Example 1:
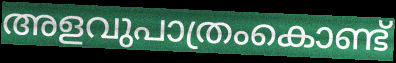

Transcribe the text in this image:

അളവുപാത്രംകൊണ്ട്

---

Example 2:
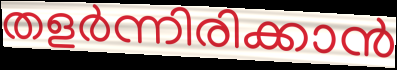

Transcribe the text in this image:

തളർന്നിരിക്കാൻ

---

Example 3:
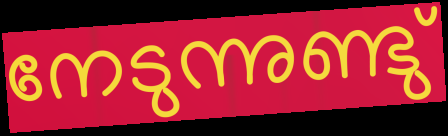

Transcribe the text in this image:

നേടുന്നുണ്ടു്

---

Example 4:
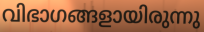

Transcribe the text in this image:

വിഭാഗങ്ങളായിരുന്നു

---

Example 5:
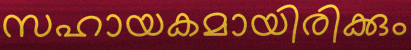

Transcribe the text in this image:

സഹായകമായിരിക്കും